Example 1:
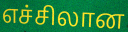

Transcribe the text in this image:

எச்சிலான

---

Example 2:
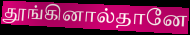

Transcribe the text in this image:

தூங்கினால்தானே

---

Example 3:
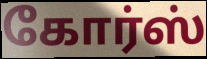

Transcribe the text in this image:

கோர்ஸ்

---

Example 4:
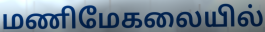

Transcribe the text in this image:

மணிமேகலையில்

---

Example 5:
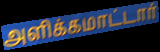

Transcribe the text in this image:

அளிக்கமாட்டார்